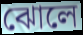
ঝোলে